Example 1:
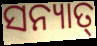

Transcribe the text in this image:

ସନ୍ୟାତ୍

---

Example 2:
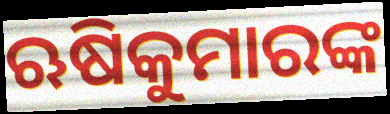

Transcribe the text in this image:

ଋଷିକୁମାରଙ୍କ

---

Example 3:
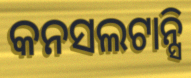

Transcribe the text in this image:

କନସଲଟାନ୍ସି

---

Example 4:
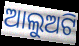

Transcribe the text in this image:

ଆଲୁଅଟି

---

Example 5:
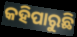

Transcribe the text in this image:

କହିପାରୁଛି